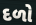
દળો